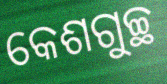
କେଶଗୁଚ୍ଛ